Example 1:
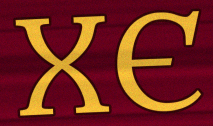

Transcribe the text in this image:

XE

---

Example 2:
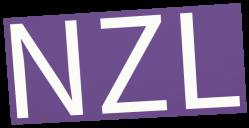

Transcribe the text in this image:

NZL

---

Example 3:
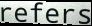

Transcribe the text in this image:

refers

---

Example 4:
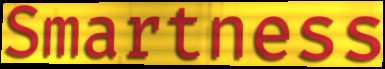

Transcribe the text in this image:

Smartness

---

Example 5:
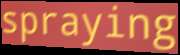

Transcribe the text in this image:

spraying